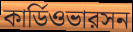
কার্ডিওভারসন